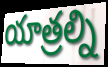
యాత్రల్ని